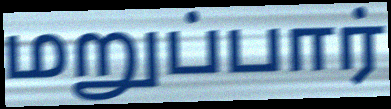
மறுப்பார்